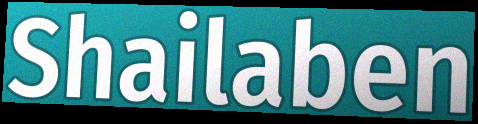
Shailaben